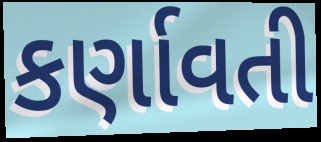
કર્ણાવતી